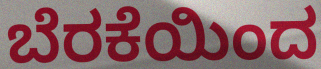
ಬೆರಕೆಯಿಂದ